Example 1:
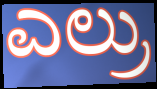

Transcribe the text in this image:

ಎಲ್ರು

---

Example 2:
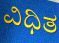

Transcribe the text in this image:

ವಿಧಿತ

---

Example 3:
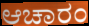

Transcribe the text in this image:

ಆಚಾರಂ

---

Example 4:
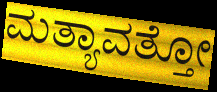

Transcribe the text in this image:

ಮತ್ಯಾವತ್ತೋ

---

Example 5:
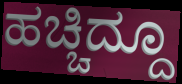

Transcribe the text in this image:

ಹಚ್ಚಿದ್ದೂ